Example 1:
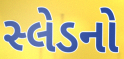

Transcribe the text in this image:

સ્લેડનો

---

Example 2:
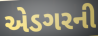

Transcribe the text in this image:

એડગરની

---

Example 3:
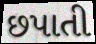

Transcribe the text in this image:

છપાતી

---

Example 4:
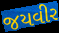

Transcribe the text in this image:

જયવીર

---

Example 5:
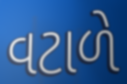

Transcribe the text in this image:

વટાળે